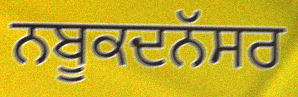
ਨਬੂਕਦਨੱਸਰ